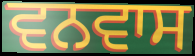
ਵਨਵਾਸ